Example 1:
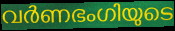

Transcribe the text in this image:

വർണഭംഗിയുടെ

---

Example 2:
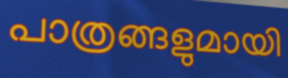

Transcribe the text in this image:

പാത്രങ്ങളുമായി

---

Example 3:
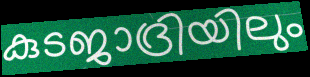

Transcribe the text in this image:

കുടജാദ്രിയിലും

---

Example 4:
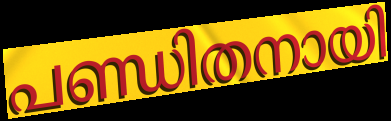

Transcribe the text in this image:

പണ്ഡിതനായി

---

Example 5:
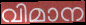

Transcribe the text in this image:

വിമാന